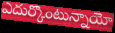
ఎదుర్కొంటున్నాయో